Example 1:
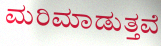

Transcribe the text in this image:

ಮರಿಮಾಡುತ್ತವೆ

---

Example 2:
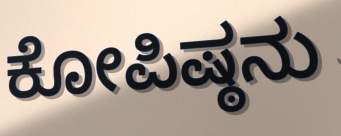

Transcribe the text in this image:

ಕೋಪಿಷ್ಠನು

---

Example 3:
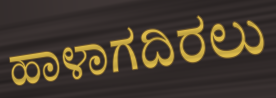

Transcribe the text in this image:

ಹಾಳಾಗದಿರಲು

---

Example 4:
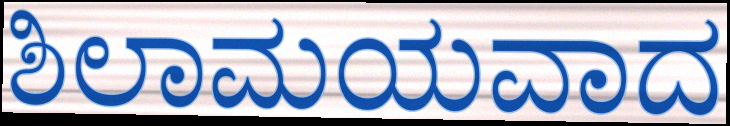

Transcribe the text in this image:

ಶಿಲಾಮಯವಾದ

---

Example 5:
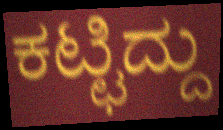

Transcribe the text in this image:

ಕಟ್ಟಿದ್ದು